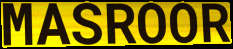
MASROOR